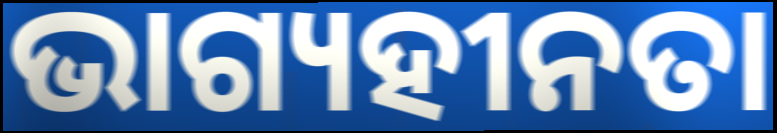
ଭାଗ୍ୟହୀନତା